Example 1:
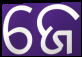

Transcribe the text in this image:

ଜେ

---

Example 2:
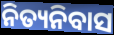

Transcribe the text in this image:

ନିତ୍ୟନିବାସ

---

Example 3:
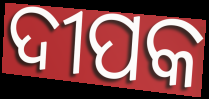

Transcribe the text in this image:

ଦୀପକ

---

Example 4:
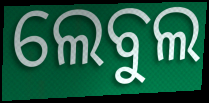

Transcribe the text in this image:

ଲେବୁଲ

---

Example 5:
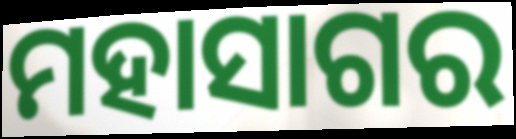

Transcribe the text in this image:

ମହାସାଗର